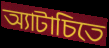
অ্যাটাচিতে